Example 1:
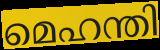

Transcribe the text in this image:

മെഹന്തി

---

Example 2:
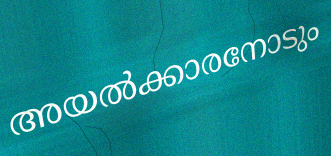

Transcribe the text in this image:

അയൽക്കാരനോടും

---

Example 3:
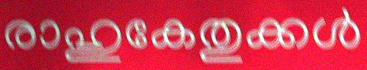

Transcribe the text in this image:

രാഹുകേതുക്കൾ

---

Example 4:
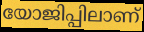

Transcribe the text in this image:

യോജിപ്പിലാണ്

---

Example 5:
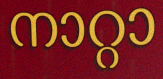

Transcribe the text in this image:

നാറ്റാ